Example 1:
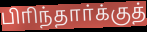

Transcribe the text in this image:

பிரிந்தார்க்குத்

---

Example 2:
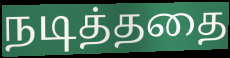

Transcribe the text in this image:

நடித்ததை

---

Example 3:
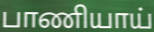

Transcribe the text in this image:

பாணியாய்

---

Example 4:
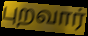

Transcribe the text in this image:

புறவார்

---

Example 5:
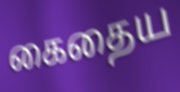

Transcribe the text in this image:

கைதைய